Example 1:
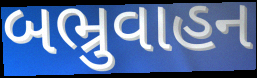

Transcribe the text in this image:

બભ્રુવાહન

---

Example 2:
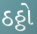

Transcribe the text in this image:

ઠઠ્ઠો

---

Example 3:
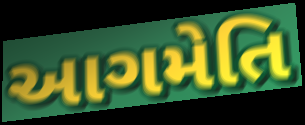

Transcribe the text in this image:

આગમેતિ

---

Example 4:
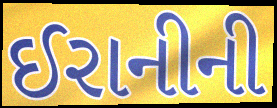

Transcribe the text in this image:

ઈરાનીની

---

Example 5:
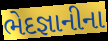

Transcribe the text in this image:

ભેદજ્ઞાનીના